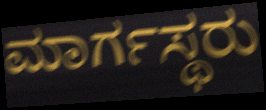
ಮಾರ್ಗಸ್ಥರು